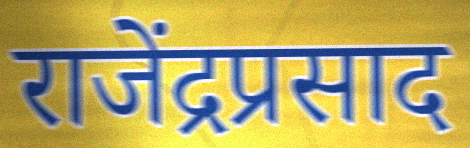
राजेंद्रप्रसाद